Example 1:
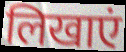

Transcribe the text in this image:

लिखाएं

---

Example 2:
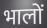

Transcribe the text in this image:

भालों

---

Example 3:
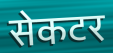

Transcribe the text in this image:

सेकटर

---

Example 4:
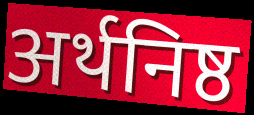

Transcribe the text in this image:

अर्थनिष्ठ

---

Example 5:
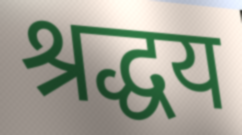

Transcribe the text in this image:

श्रद्धय